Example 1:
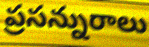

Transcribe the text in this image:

ప్రసన్నురాలు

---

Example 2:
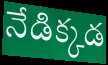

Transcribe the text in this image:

నేడిక్కడ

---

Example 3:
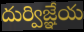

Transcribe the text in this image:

దుర్విజ్ఞేయ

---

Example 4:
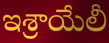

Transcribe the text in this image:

ఇశ్రాయేలీ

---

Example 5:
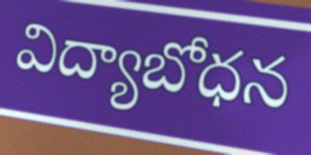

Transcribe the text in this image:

విద్యాబోధన